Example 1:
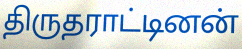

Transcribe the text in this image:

திருதராட்டினன்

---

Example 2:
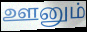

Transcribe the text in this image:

ஊனும்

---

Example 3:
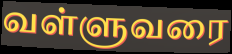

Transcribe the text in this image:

வள்ளுவரை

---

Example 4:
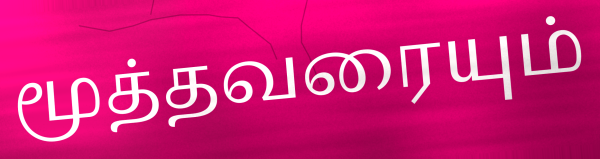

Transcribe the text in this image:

மூத்தவரையும்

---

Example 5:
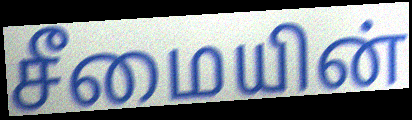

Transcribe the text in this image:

சீமையின்